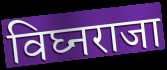
विघ्नराजा